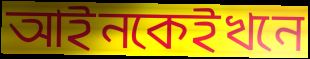
আইনকেইখনে